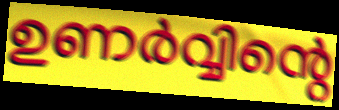
ഉണർവ്വിന്റെ